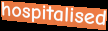
hospitalised